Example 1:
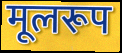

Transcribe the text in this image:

मूलरूप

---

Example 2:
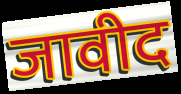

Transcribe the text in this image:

जावीद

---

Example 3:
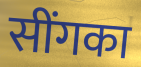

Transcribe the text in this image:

सींगका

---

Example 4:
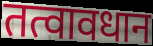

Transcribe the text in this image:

तत्‍वावधान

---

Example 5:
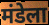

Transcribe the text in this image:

मंडेला